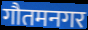
गौतमनगर